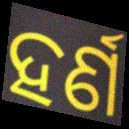
ହର୍ଣ